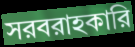
সরবরাহকারি